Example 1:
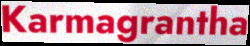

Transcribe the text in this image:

Karmagrantha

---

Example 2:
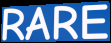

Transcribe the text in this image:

RARE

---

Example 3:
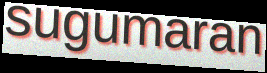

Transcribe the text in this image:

sugumaran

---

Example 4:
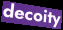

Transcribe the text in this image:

decoity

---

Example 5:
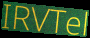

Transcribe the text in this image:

IRVTel